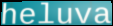
heluva